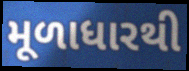
મૂળાધારથી